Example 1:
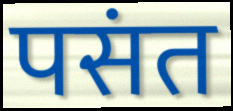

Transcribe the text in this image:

पसंत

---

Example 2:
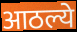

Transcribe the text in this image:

आठल्ये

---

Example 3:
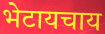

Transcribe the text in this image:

भेटायचाय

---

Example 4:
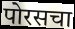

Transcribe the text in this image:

पोरसचा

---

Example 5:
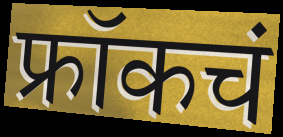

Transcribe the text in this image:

फ्रॉकचं